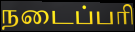
நடைப்பரி